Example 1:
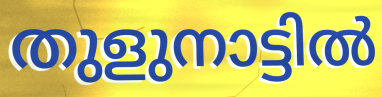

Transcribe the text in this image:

തുളുനാട്ടിൽ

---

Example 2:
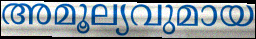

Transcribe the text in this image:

അമൂല്യവുമായ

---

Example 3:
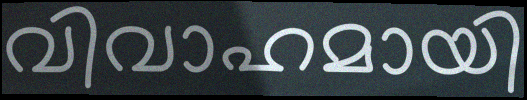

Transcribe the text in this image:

വിവാഹമായി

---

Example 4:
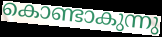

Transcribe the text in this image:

കൊണ്ടാകുന്നു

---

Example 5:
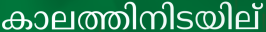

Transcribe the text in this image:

കാലത്തിനിടയില്